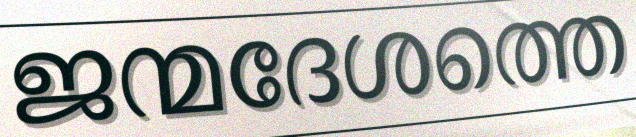
ജന്മദേശത്തെ